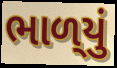
ભાળ્‌યું